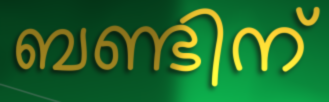
ബണ്ടിന്